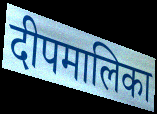
दीपमालिका